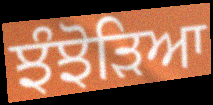
ਝੰਝੋੜਿਆ